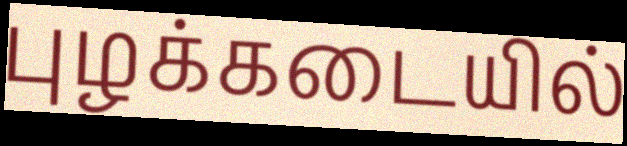
புழக்கடையில்